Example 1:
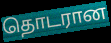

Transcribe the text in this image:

தொடரான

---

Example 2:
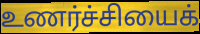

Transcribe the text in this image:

உணர்ச்சியைக்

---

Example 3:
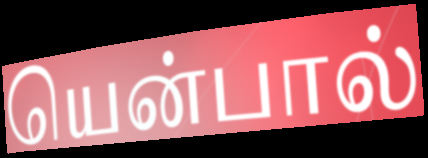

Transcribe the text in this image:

யென்பால்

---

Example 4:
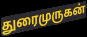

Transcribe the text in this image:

துரைமுருகன்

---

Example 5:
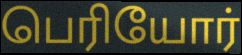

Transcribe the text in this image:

பெரியோர்